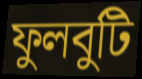
ফুলবুটি